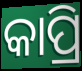
କାପ୍ରି